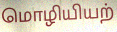
மொழியியற்